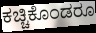
ಕಚ್ಚಿಕೊಂಡರೂ